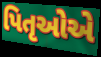
પિતૃઓેએ